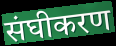
संघीकरण